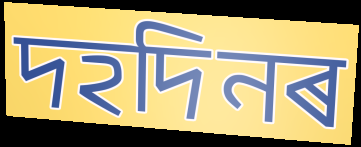
দহদিনৰ